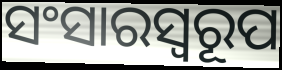
ସଂସାରସ୍ବରୂପ